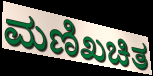
ಮಣಿಖಚಿತ